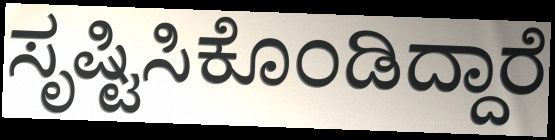
ಸೃಷ್ಟಿಸಿಕೊಂಡಿದ್ದಾರೆ